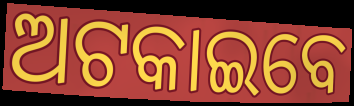
ଅଟକାଇବେ